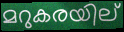
മറുകരയില്